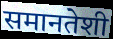
समानतेशी